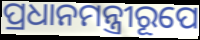
ପ୍ରଧାନମନ୍ତ୍ରୀରୂପେ